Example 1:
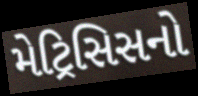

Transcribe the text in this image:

મેટ્રિસિસનો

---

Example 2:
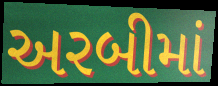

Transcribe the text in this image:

અરબીમાં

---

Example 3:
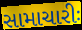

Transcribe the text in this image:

સામાચારીઃ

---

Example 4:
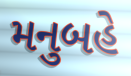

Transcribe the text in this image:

મનુબહે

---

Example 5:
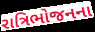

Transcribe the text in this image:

રાત્રિભોજનના